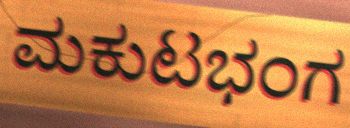
ಮಕುಟಭಂಗ